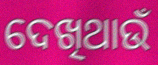
ଦେଖିଥାଉଁ